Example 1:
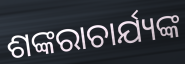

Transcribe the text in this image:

ଶଙ୍କରାଚାର୍ଯ୍ୟଙ୍କ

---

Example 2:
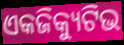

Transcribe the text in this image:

ଏକଜିକ୍ୟୁଟିଭ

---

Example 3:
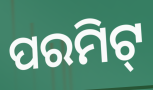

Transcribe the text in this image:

ପରମିଟ୍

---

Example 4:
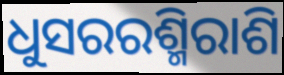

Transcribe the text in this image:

ଧୁସରରଶ୍ମିରାଶି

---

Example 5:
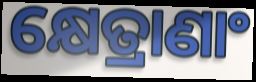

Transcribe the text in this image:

କ୍ଷେତ୍ରାଣାଂ